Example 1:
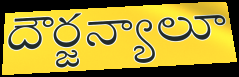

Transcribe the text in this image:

దౌర్జన్యాలూ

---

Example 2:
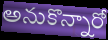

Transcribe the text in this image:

అనుకొన్నారో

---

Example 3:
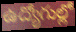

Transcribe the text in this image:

ఉద్యోగుల్లో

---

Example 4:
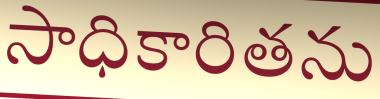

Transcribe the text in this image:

సాధికారితను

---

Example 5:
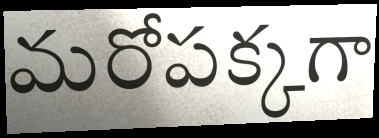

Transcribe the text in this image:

మరోపక్కగా